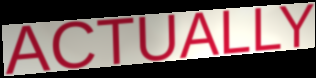
ACTUALLY